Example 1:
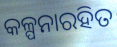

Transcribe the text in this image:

କଳ୍ପନାରହିତ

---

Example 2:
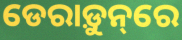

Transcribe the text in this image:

ଡେରାଡ଼ୁନ୍‌ରେ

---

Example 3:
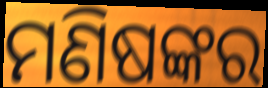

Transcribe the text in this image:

ମଣିଷଙ୍କର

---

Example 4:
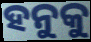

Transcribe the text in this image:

ହନୁକୁ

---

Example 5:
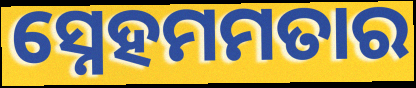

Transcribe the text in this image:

ସ୍ନେହମମତାର